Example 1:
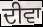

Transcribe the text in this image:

ਦੀਵਾ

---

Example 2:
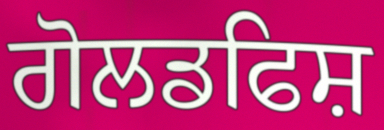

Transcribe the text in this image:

ਗੋਲਡਫਿਸ਼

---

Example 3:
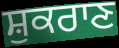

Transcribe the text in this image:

ਸ਼ੁਕਰਾਣ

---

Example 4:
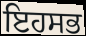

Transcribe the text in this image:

ਇਹਸਭ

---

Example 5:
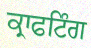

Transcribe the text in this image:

ਕ੍ਰਾਫਟਿੰਗ